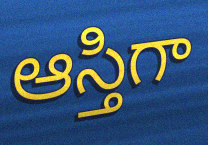
ఆస్తిగా